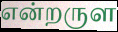
என்றருள